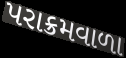
પરાક્રમવાળા